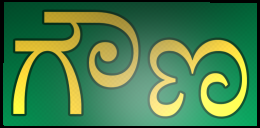
ಗೌಣ